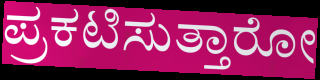
ಪ್ರಕಟಿಸುತ್ತಾರೋ